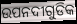
ଉପନଦୀଗୁଡିକ